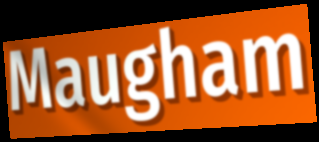
Maugham